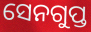
ସେନଗୁପ୍ତ